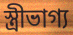
স্ত্রীভাগ্য